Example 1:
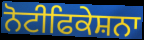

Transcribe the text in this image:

ਨੋਟੀਫਿਕੇਸ਼ਨਾ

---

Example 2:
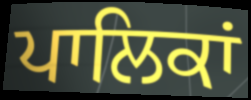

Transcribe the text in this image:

ਪਾਲਿਕਾਂ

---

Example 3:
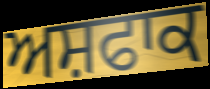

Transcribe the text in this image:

ਅਸ਼ਫਾਕ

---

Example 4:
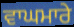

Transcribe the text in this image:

ਵਾਘਮਾਰੇ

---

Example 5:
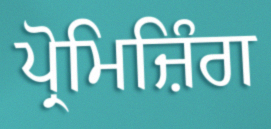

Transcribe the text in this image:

ਪ੍ਰੋਮਿਜ਼ਿੰਗ